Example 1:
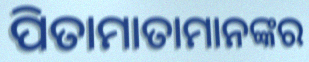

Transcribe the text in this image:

ପିତାମାତାମାନଙ୍କର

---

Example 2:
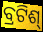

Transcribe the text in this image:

ବ୍ରଟିଶ୍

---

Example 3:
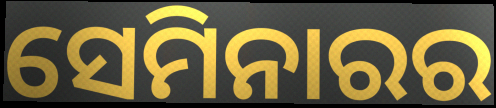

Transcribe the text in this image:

ସେମିନାରର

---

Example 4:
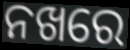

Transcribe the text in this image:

ନଖରେ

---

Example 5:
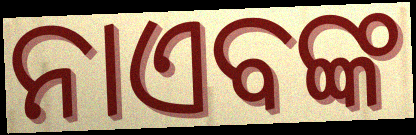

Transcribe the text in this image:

ନାଏବଙ୍କ